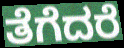
ತೆಗೆದರೆ